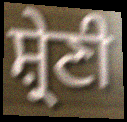
ਸ਼੍ਰੇਣੀ